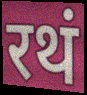
रथं